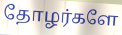
தோழர்களே